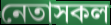
নেতাসকল